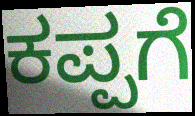
ಕಪ್ಪಗೆ